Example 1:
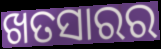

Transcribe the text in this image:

ଖତସାରର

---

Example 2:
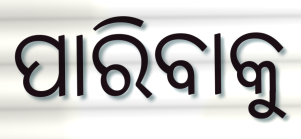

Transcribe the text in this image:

ପାରିବାକୁ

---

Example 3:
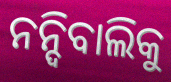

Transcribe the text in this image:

ନନ୍ଦିବାଲିକୁ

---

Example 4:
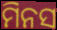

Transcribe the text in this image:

ମିନସ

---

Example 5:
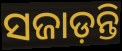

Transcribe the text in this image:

ସଜାଡ଼ନ୍ତି